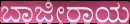
ಬಾಜೀರಾಯ